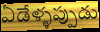
ఏడేళ్ళప్పుడు